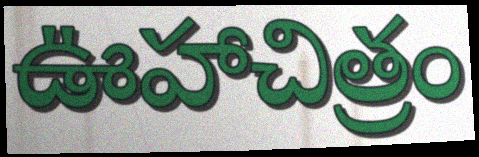
ఊహాచిత్రం